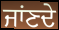
ਜਾਂਣਦੇ